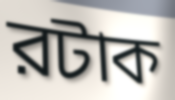
রটাক